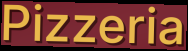
Pizzeria